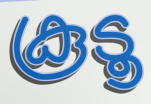
കൂടൂ